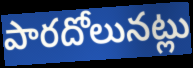
పారదోలునట్లు